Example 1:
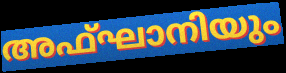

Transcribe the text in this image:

അഫ്ഘാനിയും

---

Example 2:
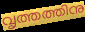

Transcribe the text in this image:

വൃത്തത്തിനു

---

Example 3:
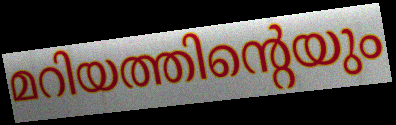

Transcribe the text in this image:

മറിയത്തിന്റെയും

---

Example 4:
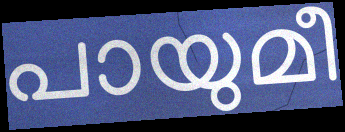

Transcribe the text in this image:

പായുമീ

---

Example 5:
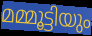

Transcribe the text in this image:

മമ്മൂട്ടിയും